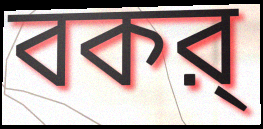
বকর্